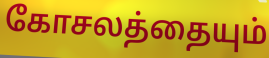
கோசலத்தையும்